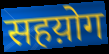
सहय़ोग